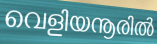
വെളിയനൂരിൽ